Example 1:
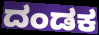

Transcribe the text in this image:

ದಂಡಕ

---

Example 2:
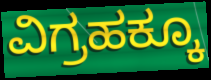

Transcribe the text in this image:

ವಿಗ್ರಹಕ್ಕೂ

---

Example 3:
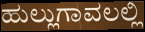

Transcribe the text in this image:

ಹುಲ್ಲುಗಾವಲಲ್ಲಿ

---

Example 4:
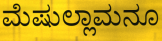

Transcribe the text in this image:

ಮೆಷುಲ್ಲಾಮನೂ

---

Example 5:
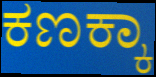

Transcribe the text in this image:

ಕಣಕ್ಕಾ